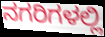
ನಗರಿಗಳಲ್ಲಿ